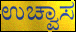
ಉಚ್ವಾಸ